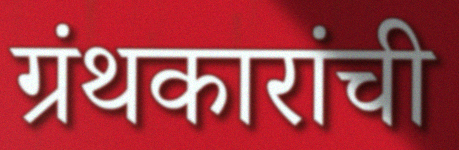
ग्रंथकारांची